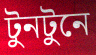
টুনটুনে